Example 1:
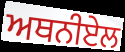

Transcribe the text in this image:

ਅਥਨੀਏਲ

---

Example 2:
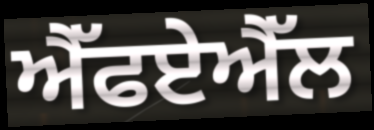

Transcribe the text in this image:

ਐੱਫਏਐੱਲ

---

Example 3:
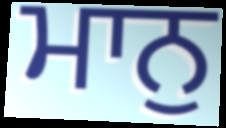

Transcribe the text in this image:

ਮਾਨੁ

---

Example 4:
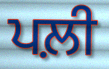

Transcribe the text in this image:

ਪਲ਼ੀ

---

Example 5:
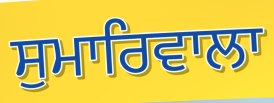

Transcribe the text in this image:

ਸੁਮਾਰਿਵਾਲਾ